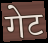
गेट